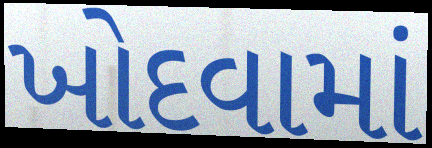
ખોદવામાં